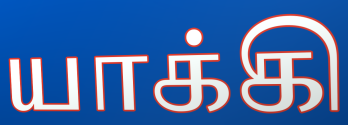
யாக்கி